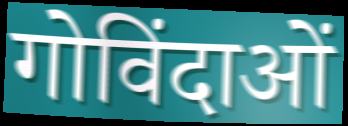
गोविंदाओं